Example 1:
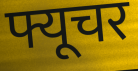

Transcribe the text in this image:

फ्यूचर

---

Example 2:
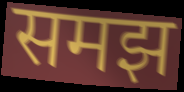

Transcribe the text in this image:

समझ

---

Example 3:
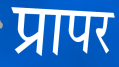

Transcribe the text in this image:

प्रापर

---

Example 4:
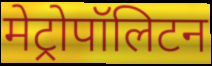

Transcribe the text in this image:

मेट्रोपॉलिटन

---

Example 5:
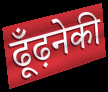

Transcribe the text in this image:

ढूँढ़नेकी